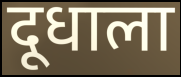
दूधाला